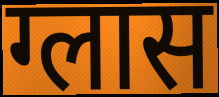
ग्लास